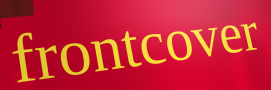
frontcover